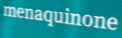
menaquinone